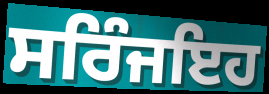
ਸਰਿੰਜਇਹ